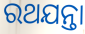
ରଥଯନ୍ତା